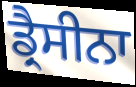
ਡ੍ਰੈਸੀਨਾ